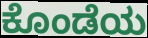
ಕೊಂಡೆಯ